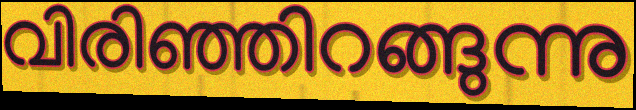
വിരിഞ്ഞിറങ്ങുന്നു